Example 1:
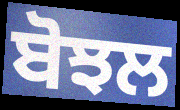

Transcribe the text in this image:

ਬੋਝਲ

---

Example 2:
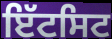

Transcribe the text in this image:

ਇੱਟਸਿਟ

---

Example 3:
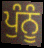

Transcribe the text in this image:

ਪੁੰਨੂੰ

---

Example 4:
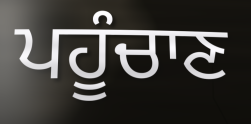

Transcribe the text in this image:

ਪਹੂੰਚਾਣ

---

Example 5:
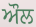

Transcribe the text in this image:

ਔਲ